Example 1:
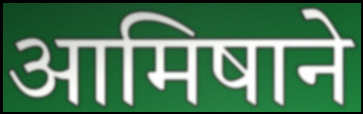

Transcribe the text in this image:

आमिषाने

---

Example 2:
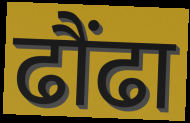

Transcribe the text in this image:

ढौंढा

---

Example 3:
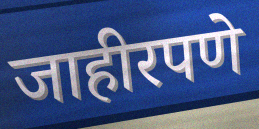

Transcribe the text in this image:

जाहीरपणे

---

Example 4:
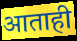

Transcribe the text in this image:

आताही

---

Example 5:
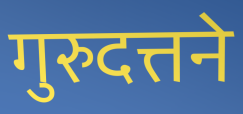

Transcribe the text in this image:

गुरुदत्तने